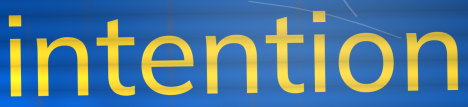
intention